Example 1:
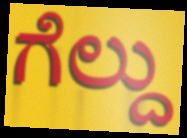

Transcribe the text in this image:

ಗೆಲ್ದು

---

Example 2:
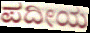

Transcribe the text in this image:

ಪದೀಯ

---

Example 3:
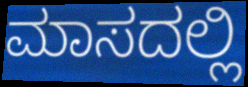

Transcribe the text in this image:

ಮಾಸದಲ್ಲಿ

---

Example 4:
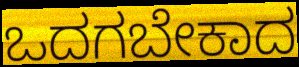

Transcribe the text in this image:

ಒದಗಬೇಕಾದ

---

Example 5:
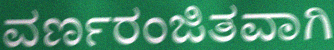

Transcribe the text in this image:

ವರ್ಣರಂಜಿತವಾಗಿ